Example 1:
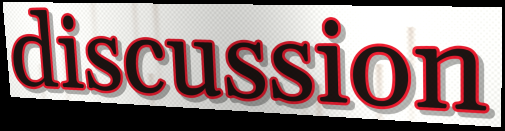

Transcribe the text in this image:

discussion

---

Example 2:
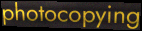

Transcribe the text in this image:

photocopying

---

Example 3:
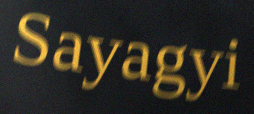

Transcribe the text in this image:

Sayagyi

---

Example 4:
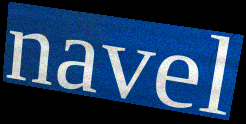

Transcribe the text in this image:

navel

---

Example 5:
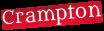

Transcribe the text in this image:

Crampton